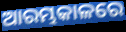
ଆରମ୍ଭକାଳରେ